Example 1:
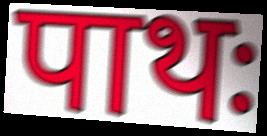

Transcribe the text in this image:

पाथः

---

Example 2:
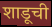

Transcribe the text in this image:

शाडूची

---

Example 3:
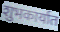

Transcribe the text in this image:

शुभकार्यात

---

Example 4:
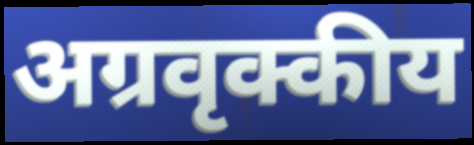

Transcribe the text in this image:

अग्रवृक्कीय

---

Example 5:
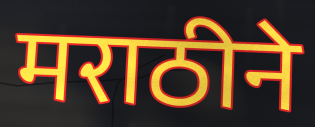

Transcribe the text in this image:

मराठीने